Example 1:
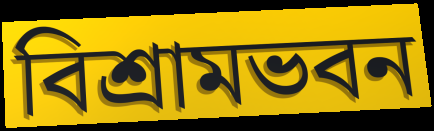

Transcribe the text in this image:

বিশ্রামভবন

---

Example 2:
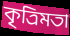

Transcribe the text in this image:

কৃত্রিমতা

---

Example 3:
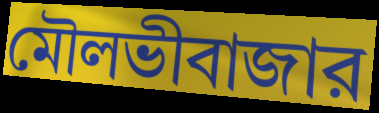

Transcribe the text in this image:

মৌলভীবাজার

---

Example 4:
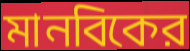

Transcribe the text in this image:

মানবিকের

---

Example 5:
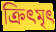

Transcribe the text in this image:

ক্রিৎমৃৎ